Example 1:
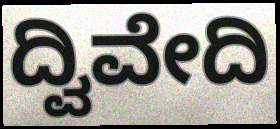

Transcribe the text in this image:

ದ್ವಿವೇದಿ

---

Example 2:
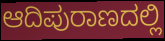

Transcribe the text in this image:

ಆದಿಪುರಾಣದಲ್ಲಿ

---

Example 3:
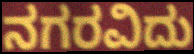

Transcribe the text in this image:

ನಗರವಿದು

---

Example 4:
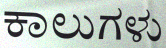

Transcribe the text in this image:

ಕಾಲುಗಳು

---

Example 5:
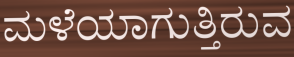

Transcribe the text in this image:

ಮಳೆಯಾಗುತ್ತಿರುವ